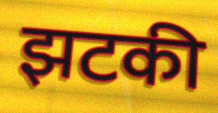
झटकी